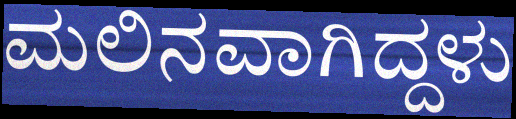
ಮಲಿನವಾಗಿದ್ದಳು